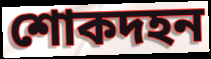
শোকদহন